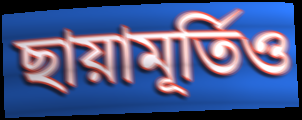
ছায়ামূর্তিও